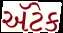
ઍટેક